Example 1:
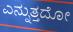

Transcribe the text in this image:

ಎನ್ನುತ್ತದೋ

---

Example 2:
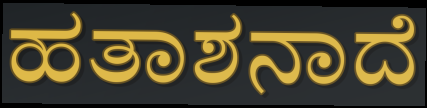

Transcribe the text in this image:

ಹತಾಶನಾದೆ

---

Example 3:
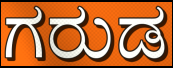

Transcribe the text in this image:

ಗರುಡ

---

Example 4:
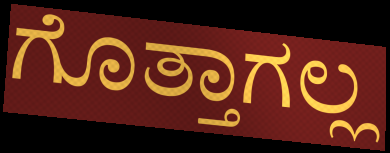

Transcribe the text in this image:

ಗೊತ್ತಾಗಲ್ಲ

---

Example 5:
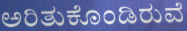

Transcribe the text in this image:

ಅರಿತುಕೊಂಡಿರುವೆ